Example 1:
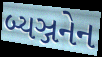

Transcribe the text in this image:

બ્યઞ્જનેન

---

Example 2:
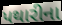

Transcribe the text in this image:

પથારીના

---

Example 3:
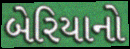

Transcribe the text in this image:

બેરિયાનો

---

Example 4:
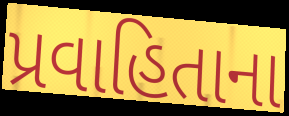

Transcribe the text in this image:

પ્રવાહિતાના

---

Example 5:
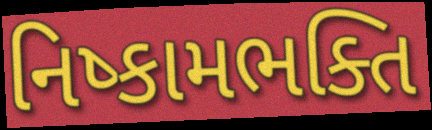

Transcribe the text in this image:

નિષ્કામભક્તિ